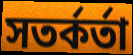
সতর্কর্তা